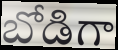
బోడిగా